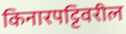
किनारपट्टिवरील